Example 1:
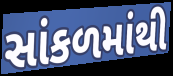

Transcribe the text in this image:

સાંકળમાંથી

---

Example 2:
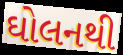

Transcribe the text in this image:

ઘોલનથી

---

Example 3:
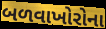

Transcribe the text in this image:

બળવાખોરોના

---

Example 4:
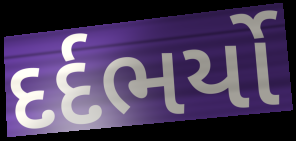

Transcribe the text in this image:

દર્દભર્યો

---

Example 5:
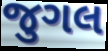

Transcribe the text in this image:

જુગલ